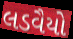
લડવૈયો